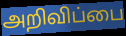
அறிவிப்பை